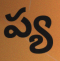
ప్య